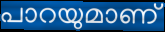
പാറയുമാണ്